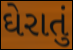
ઘેરાતું